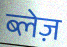
ब्लेज़